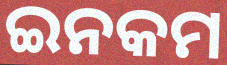
ଇନକମ